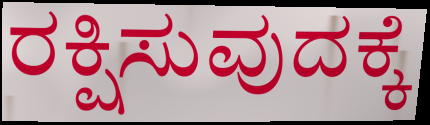
ರಕ್ಷಿಸುವುದಕ್ಕೆ